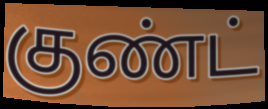
குண்ட்